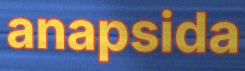
anapsida